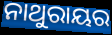
ନାଥୁରାୟର